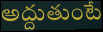
అద్దుతుంటే